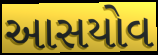
આસયોવ